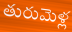
తురుమెళ్ల